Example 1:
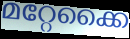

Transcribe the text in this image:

മറ്റേക്കൈ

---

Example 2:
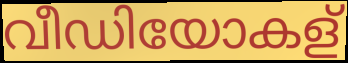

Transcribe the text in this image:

വീഡിയോകള്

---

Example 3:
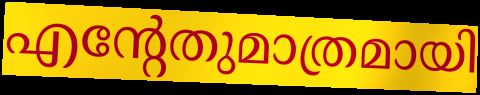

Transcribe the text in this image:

എന്റേതുമാത്രമായി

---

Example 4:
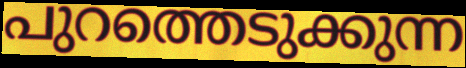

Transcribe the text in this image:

പുറത്തെടുക്കുന്ന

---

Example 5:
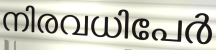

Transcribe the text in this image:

നിരവധിപേർ